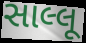
સાલ્લૂ